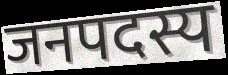
जनपदस्य